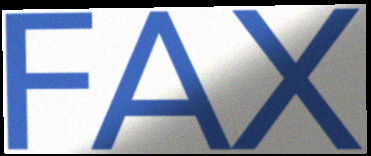
FAX